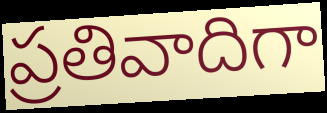
ప్రతివాదిగా